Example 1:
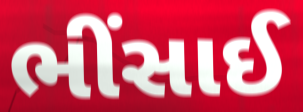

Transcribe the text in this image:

ભીંસાઈ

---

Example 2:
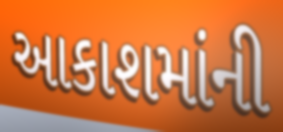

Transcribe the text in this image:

આકાશમાંની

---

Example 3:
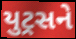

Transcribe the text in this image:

યુટ્રસને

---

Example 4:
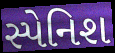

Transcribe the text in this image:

સ્પેનિશ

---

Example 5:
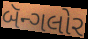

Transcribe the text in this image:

બૅન્ગલોર